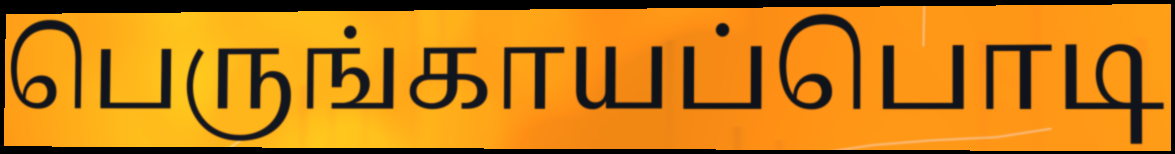
பெருங்காயப்பொடி